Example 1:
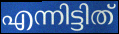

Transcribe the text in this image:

എന്നിട്ടിത്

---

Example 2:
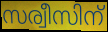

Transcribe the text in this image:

സര്വീസിന്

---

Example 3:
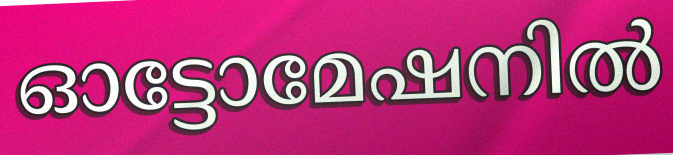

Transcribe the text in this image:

ഓട്ടോമേഷനിൽ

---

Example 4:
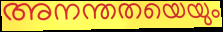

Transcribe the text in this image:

അനന്തതയെയും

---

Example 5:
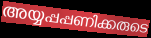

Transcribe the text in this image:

അയ്യപ്പപ്പണിക്കരുടെ